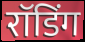
रॉडिंग